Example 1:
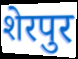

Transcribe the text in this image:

शेरपुर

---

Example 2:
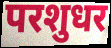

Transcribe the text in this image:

परशुधर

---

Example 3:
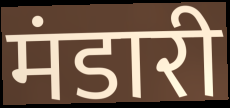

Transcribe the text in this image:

मंडारी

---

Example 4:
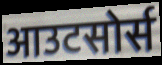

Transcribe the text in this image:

आउटसोर्स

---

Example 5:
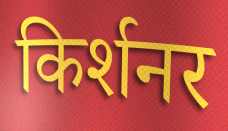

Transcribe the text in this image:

किर्शनर